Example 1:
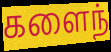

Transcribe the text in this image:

களைந்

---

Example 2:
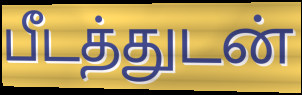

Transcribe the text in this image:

பீடத்துடன்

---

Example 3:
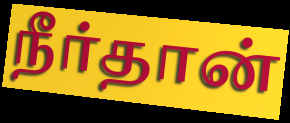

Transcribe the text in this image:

நீர்தான்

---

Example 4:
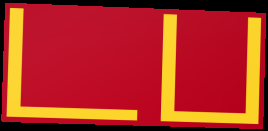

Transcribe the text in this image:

டப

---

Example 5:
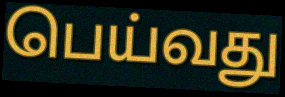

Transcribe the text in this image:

பெய்வது